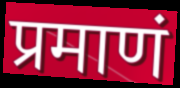
प्रमाणं